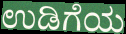
ಉಡಿಗೆಯ